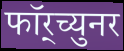
फॉर्च्युनर